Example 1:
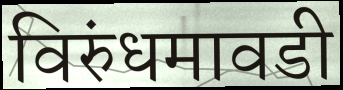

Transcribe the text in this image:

विरुंधमावडी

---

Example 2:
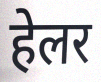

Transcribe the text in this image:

हेलर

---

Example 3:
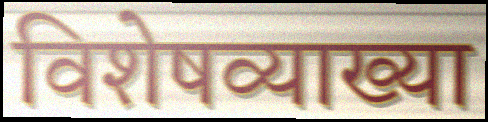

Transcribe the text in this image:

विशेषव्याख्या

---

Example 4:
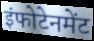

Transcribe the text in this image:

इंफोटेनमेंट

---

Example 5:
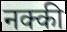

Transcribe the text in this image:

नक्की